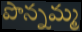
పొన్నమ్మ